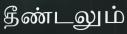
தீண்டலும்